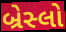
બ્રેસ્લો